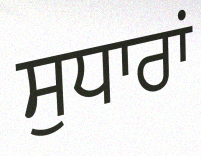
ਸੁਧਾਰਾਂ